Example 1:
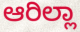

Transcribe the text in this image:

ಆರಿಲ್ಲಾ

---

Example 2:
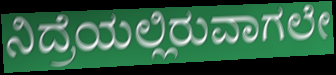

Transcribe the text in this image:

ನಿದ್ರೆಯಲ್ಲಿರುವಾಗಲೇ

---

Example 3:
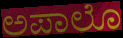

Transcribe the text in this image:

ಅಪಾಲೊ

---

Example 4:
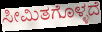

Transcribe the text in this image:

ಸೀಮಿತಗೊಳ್ಳದೆ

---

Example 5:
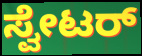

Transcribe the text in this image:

ಸ್ವೇಟರ್